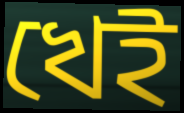
খেই